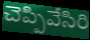
చెప్పివేసిరి